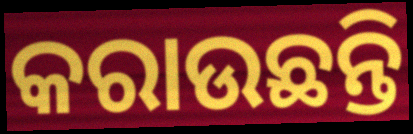
କରାଉଛନ୍ତି